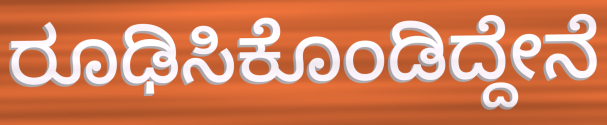
ರೂಢಿಸಿಕೊಂಡಿದ್ದೇನೆ